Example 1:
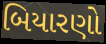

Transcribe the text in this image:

બિયારણો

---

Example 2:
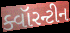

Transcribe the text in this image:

ક્વૉરન્ટીન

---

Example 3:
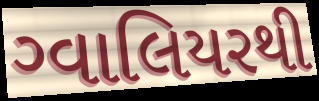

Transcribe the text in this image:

ગ્વાલિયરથી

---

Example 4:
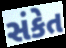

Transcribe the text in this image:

સંકેત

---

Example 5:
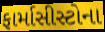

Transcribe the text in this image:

ફાર્માસીસ્ટોના